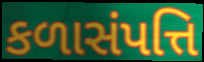
કળાસંપત્તિ